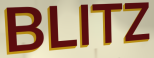
BLITZ